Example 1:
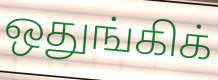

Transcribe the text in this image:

ஒதுங்கிக்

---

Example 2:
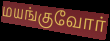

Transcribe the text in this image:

மயங்குவோர்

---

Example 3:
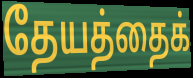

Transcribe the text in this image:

தேயத்தைக்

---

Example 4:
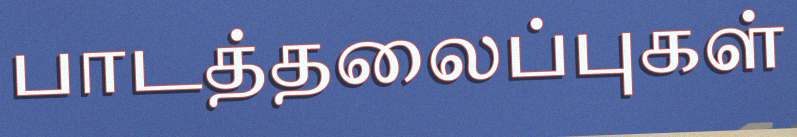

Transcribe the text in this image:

பாடத்தலைப்புகள்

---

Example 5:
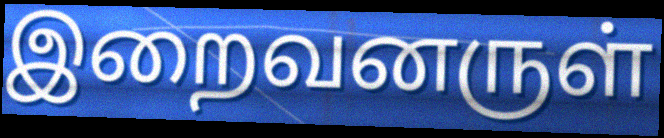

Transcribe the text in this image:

இறைவனருள்